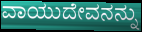
ವಾಯುದೇವನನ್ನು